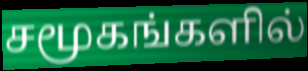
சமூகங்களில்